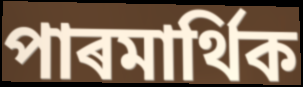
পাৰমাৰ্থিক